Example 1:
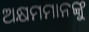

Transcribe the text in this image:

ଅକ୍ଷମମାନଙ୍କୁ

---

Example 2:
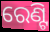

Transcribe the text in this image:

ରେଣ୍ଟି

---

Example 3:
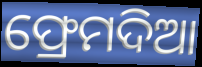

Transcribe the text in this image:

ଫ୍ରେମଦିଆ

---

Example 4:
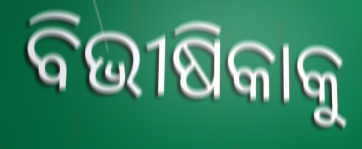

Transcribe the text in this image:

ବିଭୀଷିକାକୁ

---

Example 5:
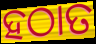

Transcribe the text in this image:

ହଠାତ